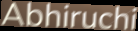
Abhiruchi